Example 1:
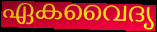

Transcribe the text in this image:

ഏകവൈദ്യ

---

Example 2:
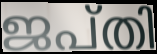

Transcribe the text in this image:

ജപ്‌തി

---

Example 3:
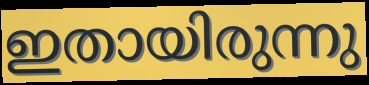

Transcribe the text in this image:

ഇതായിരുന്നു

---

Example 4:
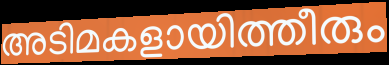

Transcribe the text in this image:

അടിമകളായിത്തീരും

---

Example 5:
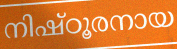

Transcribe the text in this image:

നിഷ്ഠൂരനായ